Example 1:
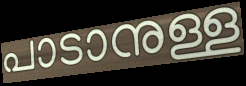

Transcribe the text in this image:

പാടാനുള്ള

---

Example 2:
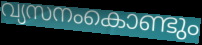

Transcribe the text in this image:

വ്യസനംകൊണ്ടും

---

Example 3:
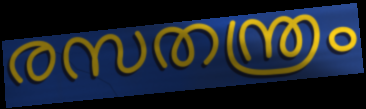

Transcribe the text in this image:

രസതന്ത്രം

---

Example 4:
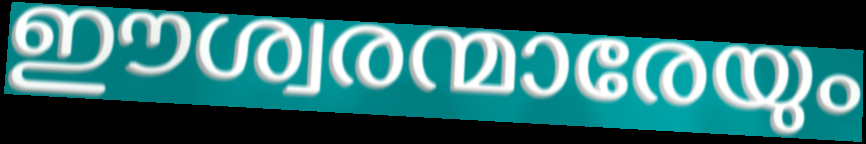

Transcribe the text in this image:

ഈശ്വരന്മാരേയും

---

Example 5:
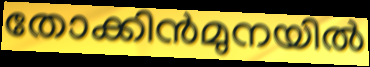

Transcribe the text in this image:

തോക്കിൻമുനയിൽ